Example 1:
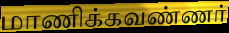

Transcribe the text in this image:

மாணிக்கவண்ணர்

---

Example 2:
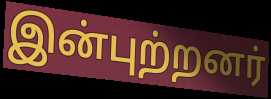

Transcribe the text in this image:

இன்புற்றனர்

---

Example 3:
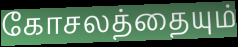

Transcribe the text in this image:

கோசலத்தையும்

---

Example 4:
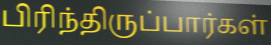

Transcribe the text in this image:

பிரிந்திருப்பார்கள்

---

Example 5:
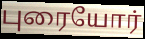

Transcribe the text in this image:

புரையோர்